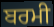
ਬਰਮੀ